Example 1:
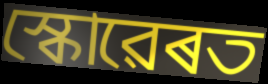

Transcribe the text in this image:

স্কোৱেৰত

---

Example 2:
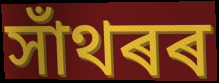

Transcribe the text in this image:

সাঁথৰৰ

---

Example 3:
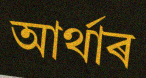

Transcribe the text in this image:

আৰ্থাৰ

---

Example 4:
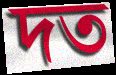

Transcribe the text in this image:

দত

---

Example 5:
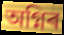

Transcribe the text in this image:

অগ্নিৰ